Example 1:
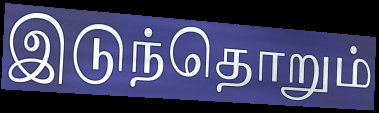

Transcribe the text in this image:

இடுந்தொறும்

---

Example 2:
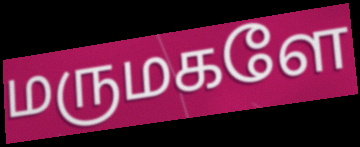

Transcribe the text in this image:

மருமகளே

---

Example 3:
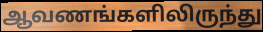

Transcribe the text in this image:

ஆவணங்களிலிருந்து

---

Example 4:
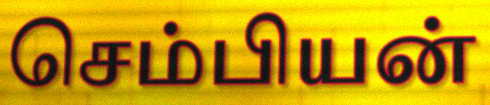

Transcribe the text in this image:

செம்பியன்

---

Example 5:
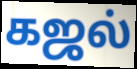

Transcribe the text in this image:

கஜல்